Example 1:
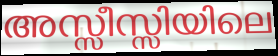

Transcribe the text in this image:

അസ്സീസ്സിയിലെ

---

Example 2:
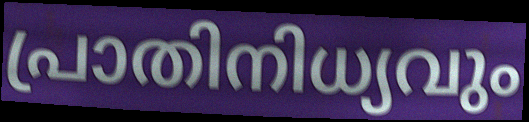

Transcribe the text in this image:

പ്രാതിനിധ്യവും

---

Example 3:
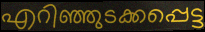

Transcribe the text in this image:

എറിഞ്ഞുടക്കപ്പെട്ട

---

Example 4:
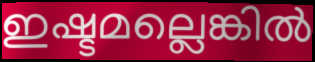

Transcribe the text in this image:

ഇഷ്ടമല്ലെങ്കിൽ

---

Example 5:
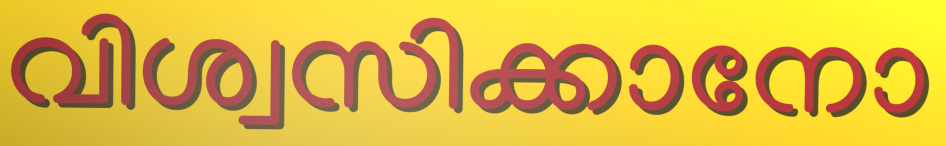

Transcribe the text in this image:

വിശ്വസിക്കാനോ